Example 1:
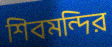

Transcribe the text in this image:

শিবমন্দির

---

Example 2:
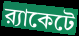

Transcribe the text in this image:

র‍্যাকেটে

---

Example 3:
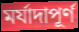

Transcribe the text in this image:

মর্যাদাপূর্ণ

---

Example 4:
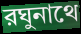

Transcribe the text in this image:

রঘুনাথে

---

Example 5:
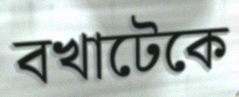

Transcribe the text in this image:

বখাটেকে